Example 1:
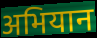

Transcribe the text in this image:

अभियान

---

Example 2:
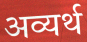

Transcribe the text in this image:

अव्यर्थ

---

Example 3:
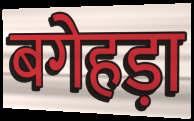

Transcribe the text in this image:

बगेहड़ा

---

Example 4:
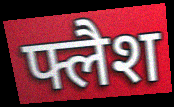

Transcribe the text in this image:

फ्लैश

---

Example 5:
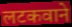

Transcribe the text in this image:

लटकवाने